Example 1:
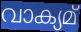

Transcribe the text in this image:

വാക്യമ്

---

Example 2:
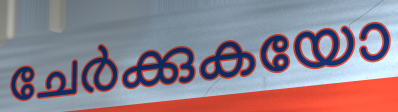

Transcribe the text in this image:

ചേർക്കുകയോ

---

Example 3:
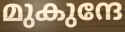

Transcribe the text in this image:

മുകുന്ദേ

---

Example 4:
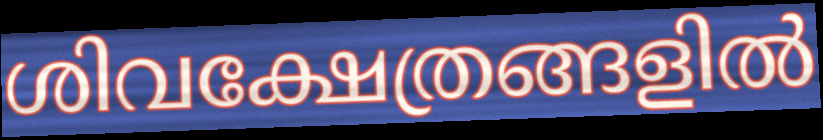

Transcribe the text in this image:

ശിവക്ഷേത്രങ്ങളിൽ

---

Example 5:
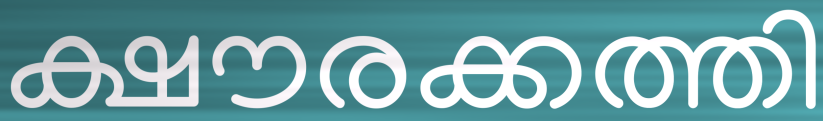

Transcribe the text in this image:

ക്ഷൗരക്കത്തി